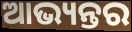
ଆଭ୍ୟନ୍ତର